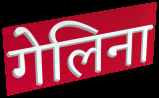
गेलिना